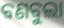
ବଣବୁଲା